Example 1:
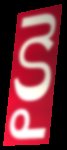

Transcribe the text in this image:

కై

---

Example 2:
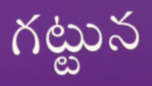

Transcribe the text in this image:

గట్టున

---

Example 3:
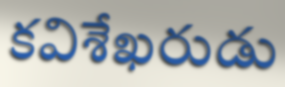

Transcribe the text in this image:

కవిశేఖరుడు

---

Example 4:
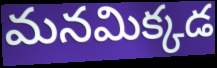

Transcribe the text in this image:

మనమిక్కడ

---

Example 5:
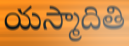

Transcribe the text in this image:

యస్మాదితి